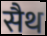
सैथ